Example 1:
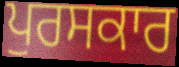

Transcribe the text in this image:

ਪੁਰਸਕਾਰ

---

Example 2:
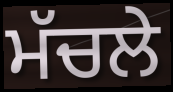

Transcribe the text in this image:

ਮੱਚਲੇ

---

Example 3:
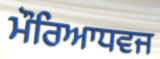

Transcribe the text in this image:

ਮੌਰਿਆਧਵਜ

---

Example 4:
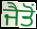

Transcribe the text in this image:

ਜੈਤੋਂ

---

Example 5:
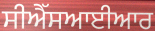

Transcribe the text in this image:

ਸੀਐੱਸਆਈਆਰ